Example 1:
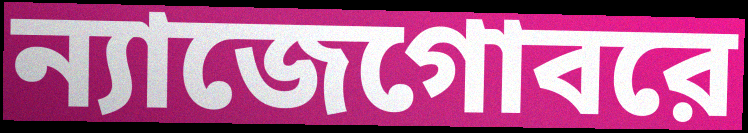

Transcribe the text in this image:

ন্যাজেগোবরে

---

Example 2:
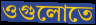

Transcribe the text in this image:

ওগুলোতে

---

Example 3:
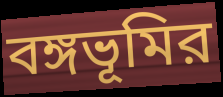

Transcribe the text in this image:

বঙ্গভূমির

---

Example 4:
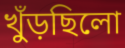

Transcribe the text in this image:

খুঁড়ছিলো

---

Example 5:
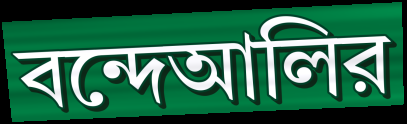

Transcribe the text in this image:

বন্দেআলির